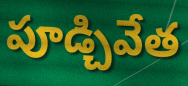
పూడ్చివేత